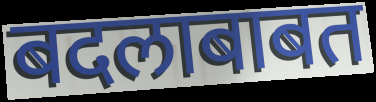
बदलाबाबत